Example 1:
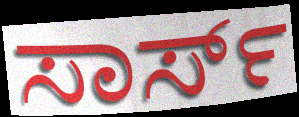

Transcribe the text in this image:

ಸಾರ್ಸ್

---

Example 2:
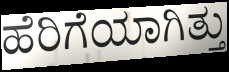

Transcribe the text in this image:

ಹೆರಿಗೆಯಾಗಿತ್ತು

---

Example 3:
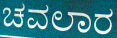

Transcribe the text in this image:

ಚವಲಾರ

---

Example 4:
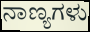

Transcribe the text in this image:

ನಾಣ್ಯಗಳು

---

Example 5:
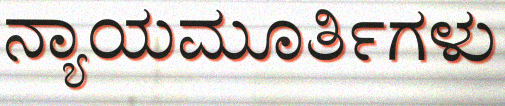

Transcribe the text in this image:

ನ್ಯಾಯಮೂರ್ತಿಗಳು